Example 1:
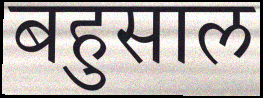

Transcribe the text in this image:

बहुसाल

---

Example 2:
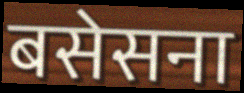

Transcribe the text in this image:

बसेसना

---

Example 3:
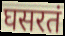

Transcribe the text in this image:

घसरतं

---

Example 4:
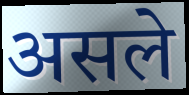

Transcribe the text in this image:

असले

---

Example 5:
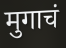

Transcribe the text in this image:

मुगाचं